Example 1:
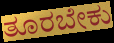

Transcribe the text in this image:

ತೂರಬೇಕು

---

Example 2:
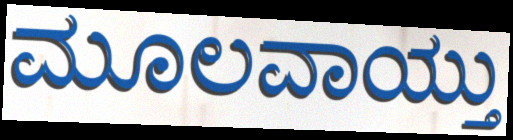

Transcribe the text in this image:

ಮೂಲವಾಯ್ತು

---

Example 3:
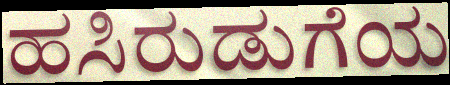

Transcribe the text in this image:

ಹಸಿರುಡುಗೆಯ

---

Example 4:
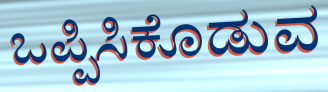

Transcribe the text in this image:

ಒಪ್ಪಿಸಿಕೊಡುವ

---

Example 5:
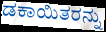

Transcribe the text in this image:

ಡಕಾಯಿತರನ್ನು